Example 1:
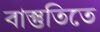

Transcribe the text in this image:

বাস্তুতিতে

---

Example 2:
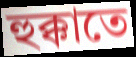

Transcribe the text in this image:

হুক্কাতে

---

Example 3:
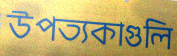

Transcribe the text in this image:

উপত্যকাগুলি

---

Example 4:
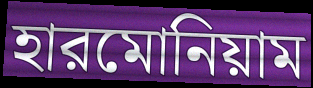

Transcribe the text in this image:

হারমোনিয়াম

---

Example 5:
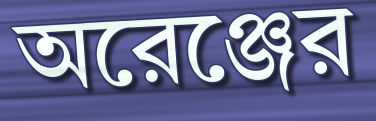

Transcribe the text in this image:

অরেঞ্জের